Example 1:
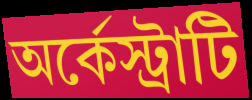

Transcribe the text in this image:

অর্কেস্ট্রাটি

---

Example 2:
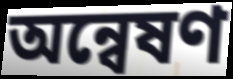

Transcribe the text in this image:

অন্বেষণ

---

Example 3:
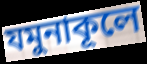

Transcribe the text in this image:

যমুনাকূলে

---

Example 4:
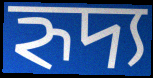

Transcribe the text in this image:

হৃদ্য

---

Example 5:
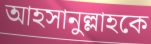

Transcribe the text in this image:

আহসানুল্লাহকে